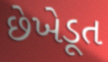
છેખેડૂત